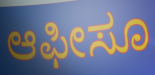
ಆಫೀಸೂ